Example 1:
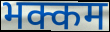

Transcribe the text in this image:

भक्कम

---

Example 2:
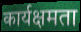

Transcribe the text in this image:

कार्यक्षमता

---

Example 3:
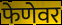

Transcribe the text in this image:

फेणेवर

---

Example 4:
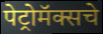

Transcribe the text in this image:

पेट्रोमॅक्सचे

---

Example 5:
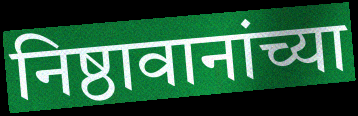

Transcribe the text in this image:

निष्ठावानांच्या